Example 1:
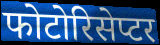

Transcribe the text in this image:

फोटोरिसेप्टर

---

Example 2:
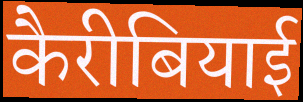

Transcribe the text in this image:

कैरीबियाई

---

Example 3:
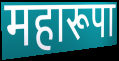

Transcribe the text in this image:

महारूपा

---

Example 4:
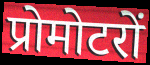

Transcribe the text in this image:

प्रोमोटरों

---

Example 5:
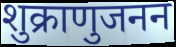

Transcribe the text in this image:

शुक्राणुजनन